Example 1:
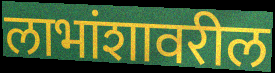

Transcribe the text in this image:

लाभांशावरील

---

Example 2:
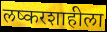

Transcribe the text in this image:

लष्करशाहीला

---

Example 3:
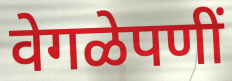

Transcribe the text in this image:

वेगळेपणीं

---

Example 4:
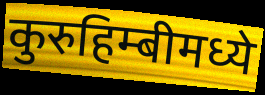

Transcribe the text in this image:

कुरुहिम्बीमध्ये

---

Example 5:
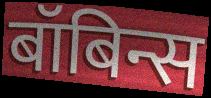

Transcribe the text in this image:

बॉबिन्स